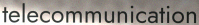
telecommunication